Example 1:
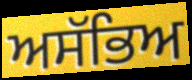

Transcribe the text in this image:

ਅਸੱਭਿਅ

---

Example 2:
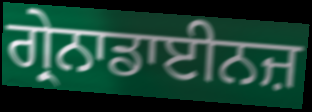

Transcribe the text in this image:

ਗ੍ਰੇਨਾਡਾਈਨਜ਼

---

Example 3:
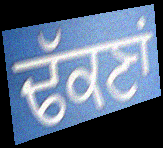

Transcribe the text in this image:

ਢੱਕਣਾਂ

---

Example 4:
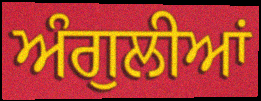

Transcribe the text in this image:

ਅੰਗੁਲੀਆਂ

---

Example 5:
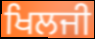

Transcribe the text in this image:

ਖਿਲਜੀ